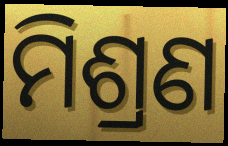
ମିଶ୍ରଣ